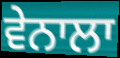
ਵੇਨਾਲਾ